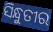
ସିନ୍ଧୁତୀର